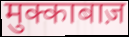
मुक्काबाज़